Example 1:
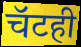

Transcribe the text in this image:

चॅटही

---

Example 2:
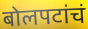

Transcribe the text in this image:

बोलपटांचं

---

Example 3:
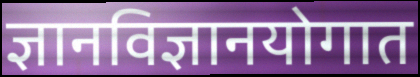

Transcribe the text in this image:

ज्ञानविज्ञानयोगात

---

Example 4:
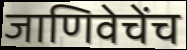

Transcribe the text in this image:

जाणिवेचेंच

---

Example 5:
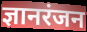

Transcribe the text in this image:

ज्ञानरंजन